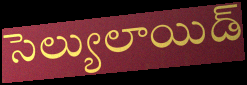
సెల్యులాయిడ్